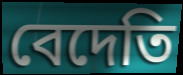
বেদেতি